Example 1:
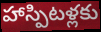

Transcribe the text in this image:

హాస్పిటళ్లకు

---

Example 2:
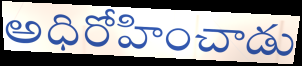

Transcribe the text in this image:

అధిరోహించాడు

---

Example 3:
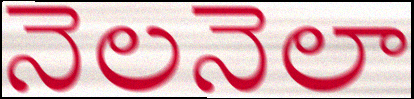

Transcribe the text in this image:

నెలనెలా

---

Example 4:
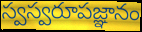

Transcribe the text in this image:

స్వస్వరూపజ్ఞానం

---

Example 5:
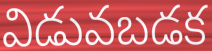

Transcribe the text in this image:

విడువబడక